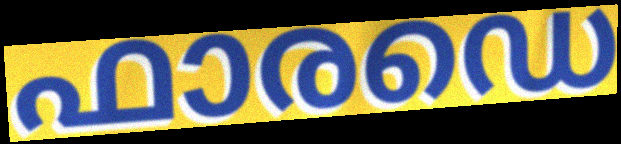
ഫാരഡെ